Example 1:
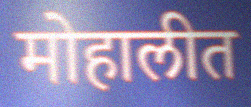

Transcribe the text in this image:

मोहालीत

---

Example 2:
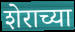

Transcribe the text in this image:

शेराच्या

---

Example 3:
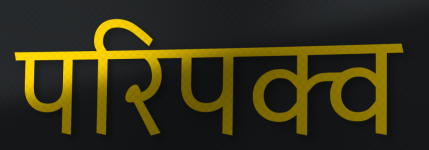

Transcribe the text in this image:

परिपक्व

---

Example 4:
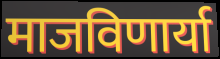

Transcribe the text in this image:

माजविणार्या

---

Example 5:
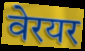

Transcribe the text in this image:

वेरयर